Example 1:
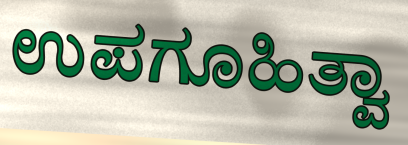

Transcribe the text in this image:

ಉಪಗೂಹಿತ್ವಾ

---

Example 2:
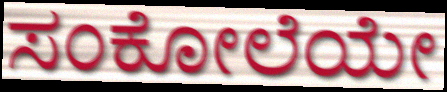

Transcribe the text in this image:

ಸಂಕೋಲೆಯೇ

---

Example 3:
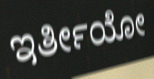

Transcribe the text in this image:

ಇರ್ತೀಯೋ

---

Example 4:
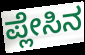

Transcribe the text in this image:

ಪ್ಲೇಸಿನ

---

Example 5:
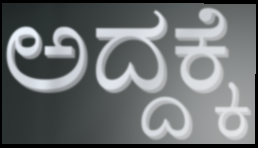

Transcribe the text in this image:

ಅದ್ದಕ್ಕೆ